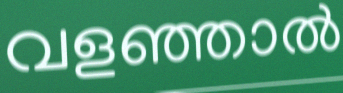
വളഞ്ഞാൽ